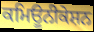
ਕਮਿਊਨੀਕੇਸ਼ਨ